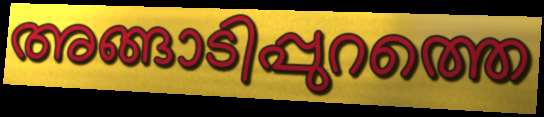
അങ്ങാടിപ്പുറത്തെ